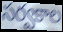
సర్వకాల